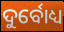
ଦୁର୍ବୋଧ୍ୟ